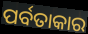
ପର୍ବତାକାର